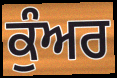
ਕੁੰਅਰ